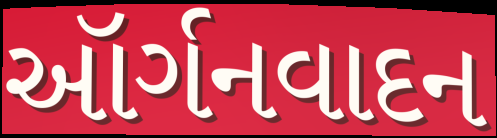
ઑર્ગનવાદન